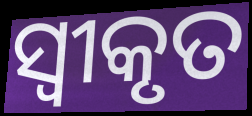
ସ୍ବୀକୃତ